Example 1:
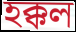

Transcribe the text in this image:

হক্কল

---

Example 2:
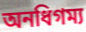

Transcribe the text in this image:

অনধিগম্য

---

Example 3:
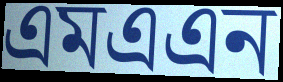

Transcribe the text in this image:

এমএএন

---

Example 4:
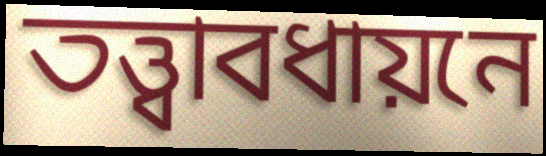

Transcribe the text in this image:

তত্ত্বাবধায়নে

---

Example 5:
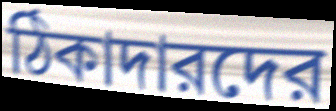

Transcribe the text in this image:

ঠিকাদারদের